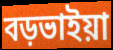
বড়ভাইয়া